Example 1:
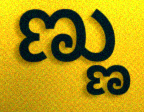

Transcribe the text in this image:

ಣ್ಣು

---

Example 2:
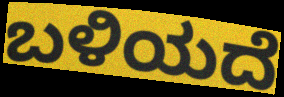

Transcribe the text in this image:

ಬಳಿಯದೆ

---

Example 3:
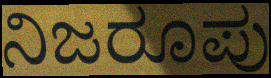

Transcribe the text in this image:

ನಿಜರೂಪು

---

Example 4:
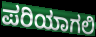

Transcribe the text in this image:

ಪರಿಯಾಗಲಿ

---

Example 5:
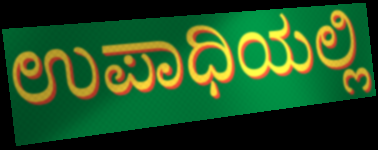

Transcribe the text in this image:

ಉಪಾಧಿಯಲ್ಲಿ